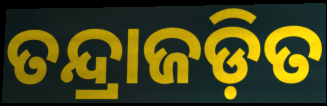
ତନ୍ଦ୍ରାଜଡ଼ିତ